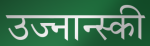
उज्नान्स्की